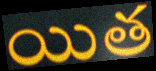
యిత